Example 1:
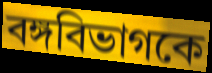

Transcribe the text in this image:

বঙ্গবিভাগকে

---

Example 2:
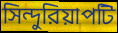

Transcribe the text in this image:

সিন্দুরিয়াপটি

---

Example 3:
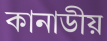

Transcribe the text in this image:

কানাডীয়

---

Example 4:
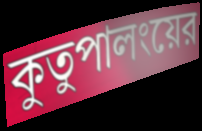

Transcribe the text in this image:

কুতুপালংয়ের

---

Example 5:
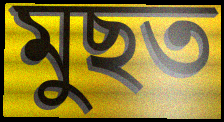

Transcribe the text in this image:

মুছত